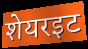
शेयरइट